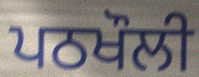
ਪਠਖੌਲੀ